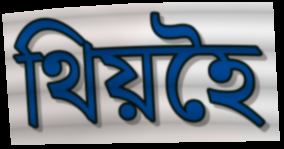
থিয়হৈ